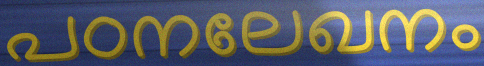
പഠനലേഖനം